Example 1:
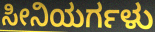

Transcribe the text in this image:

ಸೀನಿಯರ್ಗಳು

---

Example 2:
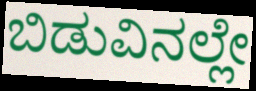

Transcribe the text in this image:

ಬಿಡುವಿನಲ್ಲೇ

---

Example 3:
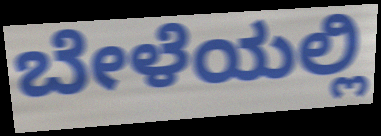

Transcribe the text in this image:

ಬೇಳೆಯಲ್ಲಿ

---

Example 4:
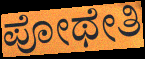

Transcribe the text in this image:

ಪೋಥೇತಿ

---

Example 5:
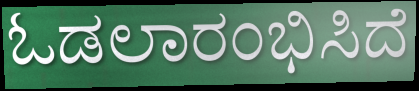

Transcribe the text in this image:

ಓಡಲಾರಂಭಿಸಿದೆ